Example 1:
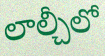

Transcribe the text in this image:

లాల్చీలో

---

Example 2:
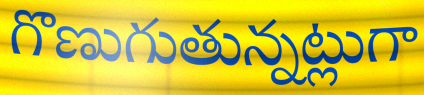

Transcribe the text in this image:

గొణుగుతున్నట్లుగా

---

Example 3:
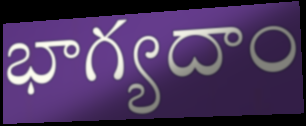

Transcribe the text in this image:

భాగ్యదాం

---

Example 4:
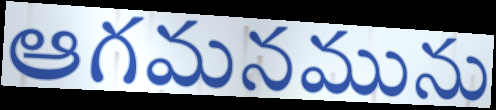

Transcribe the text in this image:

ఆగమనమును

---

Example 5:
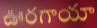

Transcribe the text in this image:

ఊరగాయా